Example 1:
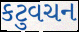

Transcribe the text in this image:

કટુવચન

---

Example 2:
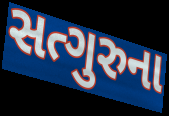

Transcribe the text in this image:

સત્ગુરુના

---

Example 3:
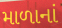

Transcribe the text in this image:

માળાનાં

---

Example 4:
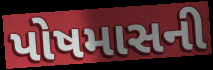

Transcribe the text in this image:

પોષમાસની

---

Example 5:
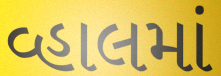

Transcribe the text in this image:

વ્હાલમાં